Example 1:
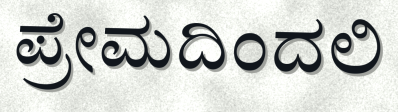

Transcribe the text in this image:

ಪ್ರೇಮದಿಂದಲಿ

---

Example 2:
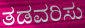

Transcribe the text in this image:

ತಡವರಿಸು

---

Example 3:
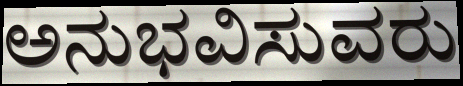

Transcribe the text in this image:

ಅನುಭವಿಸುವರು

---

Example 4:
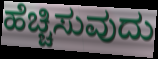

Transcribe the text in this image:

ಹೆಚ್ಚಿಸುವುದು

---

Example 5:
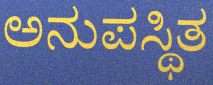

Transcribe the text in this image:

ಅನುಪಸ್ಥಿತ